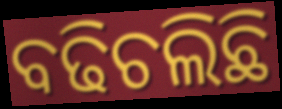
ବଢିଚଲିଛି